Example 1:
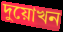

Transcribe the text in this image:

দুয়োখন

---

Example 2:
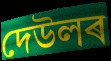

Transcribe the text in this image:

দেউলৰ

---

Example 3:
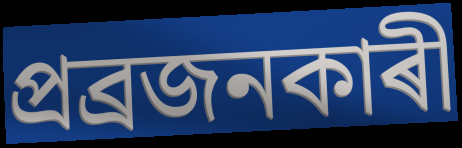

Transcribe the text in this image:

প্ৰব্ৰজনকাৰী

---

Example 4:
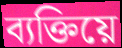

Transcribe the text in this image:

ব্যক্তিয়ে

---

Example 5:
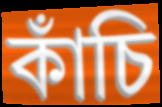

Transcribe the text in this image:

কাঁচি